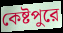
কেষ্টপুরে